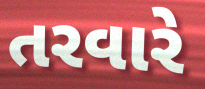
તરવારે